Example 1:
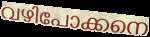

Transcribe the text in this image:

വഴിപോക്കനെ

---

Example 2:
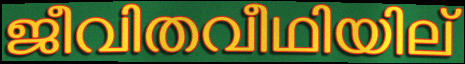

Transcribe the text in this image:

ജീവിതവീഥിയില്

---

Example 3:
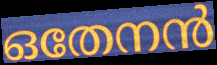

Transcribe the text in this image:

ഒതേനൻ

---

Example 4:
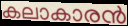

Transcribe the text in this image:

കലാകാരൻ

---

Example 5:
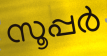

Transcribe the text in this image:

സൂപ്പർ